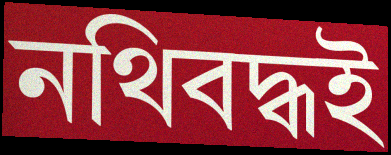
নথিবদ্ধই